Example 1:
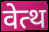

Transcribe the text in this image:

वेत्थ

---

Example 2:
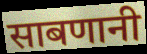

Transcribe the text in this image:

साबणानी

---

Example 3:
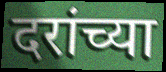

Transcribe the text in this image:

दरांच्या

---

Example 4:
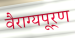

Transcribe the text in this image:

वैराग्यपूर्ण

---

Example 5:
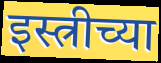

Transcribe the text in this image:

इस्त्रीच्या